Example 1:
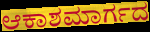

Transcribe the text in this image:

ಆಕಾಶಮಾರ್ಗದ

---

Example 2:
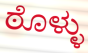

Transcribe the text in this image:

ಠೊಳ್ಳು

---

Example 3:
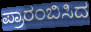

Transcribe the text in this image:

ಪ್ರಾರಂಬಿಸಿದ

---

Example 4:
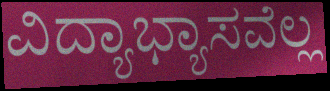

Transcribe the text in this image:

ವಿದ್ಯಾಭ್ಯಾಸವೆಲ್ಲ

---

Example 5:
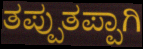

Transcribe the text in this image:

ತಪ್ಪುತಪ್ಪಾಗಿ